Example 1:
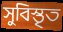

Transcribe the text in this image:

সুবিস্তৃত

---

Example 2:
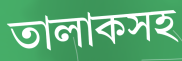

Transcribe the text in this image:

তালাকসহ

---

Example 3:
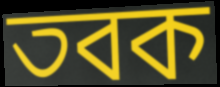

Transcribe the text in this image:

তবক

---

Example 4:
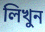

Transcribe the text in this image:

লিখুন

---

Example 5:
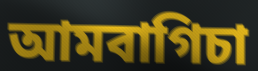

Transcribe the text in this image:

আমবাগিচা